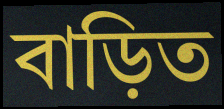
বাড়িত